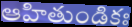
ఆహితుండికః